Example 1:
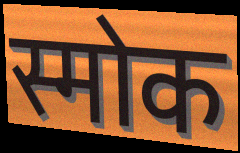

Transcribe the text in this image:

स्मोक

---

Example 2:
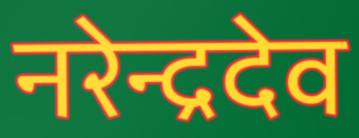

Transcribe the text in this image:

नरेन्द्रदेव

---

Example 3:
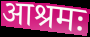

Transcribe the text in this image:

आश्रमः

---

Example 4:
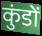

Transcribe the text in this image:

कुंडों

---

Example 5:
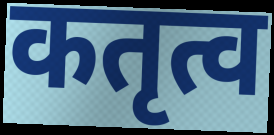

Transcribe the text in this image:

कतृत्व